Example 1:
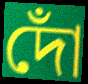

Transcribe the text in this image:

দোঁ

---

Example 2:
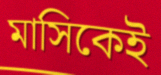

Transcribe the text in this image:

মাসিকেই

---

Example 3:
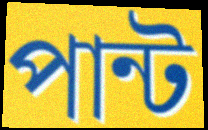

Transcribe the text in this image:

পান্ট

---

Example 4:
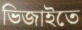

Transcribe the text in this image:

ভিজাইতে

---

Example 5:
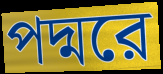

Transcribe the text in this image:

পদ্মরে